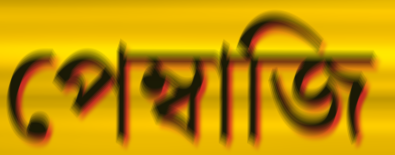
পেম্বাজি